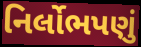
નિર્લોભપણું